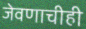
जेवणाचीही